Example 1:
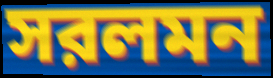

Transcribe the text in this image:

সরলমন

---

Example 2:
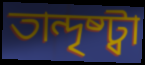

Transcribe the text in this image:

তান্দৃষ্ট্বা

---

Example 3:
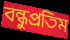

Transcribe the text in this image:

বন্ধুপ্রতিম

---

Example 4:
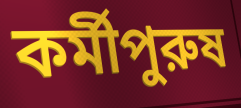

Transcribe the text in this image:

কর্মীপুরুষ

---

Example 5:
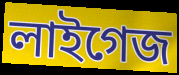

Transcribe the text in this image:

লাইগেজ